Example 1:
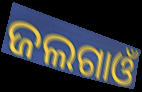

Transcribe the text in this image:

ଜଲଗାଓଁ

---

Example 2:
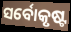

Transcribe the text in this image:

ସର୍ବୋକୃଷ୍ଟ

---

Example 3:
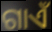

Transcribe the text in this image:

ଗାଏଁ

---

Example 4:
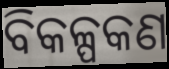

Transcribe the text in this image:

ବିକଳ୍ପକଣ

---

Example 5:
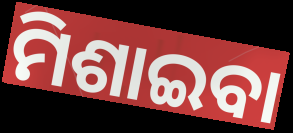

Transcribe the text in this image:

ମିଶାଇବା